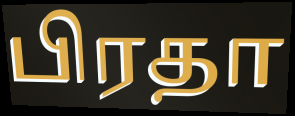
பிரதா